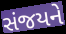
સંજયને